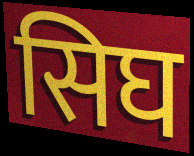
सिघ